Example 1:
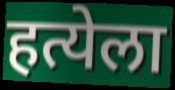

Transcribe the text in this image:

हत्येला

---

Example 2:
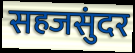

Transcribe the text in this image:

सहजसुंदर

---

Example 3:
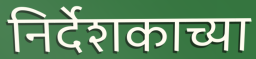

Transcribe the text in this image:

निर्देशकाच्या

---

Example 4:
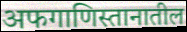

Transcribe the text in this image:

अफगाणिस्तानातील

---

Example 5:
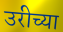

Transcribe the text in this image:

उरीच्या